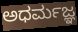
ಅಧರ್ಮಜ್ಞ